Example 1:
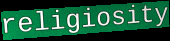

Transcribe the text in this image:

religiosity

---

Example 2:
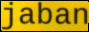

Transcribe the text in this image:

jaban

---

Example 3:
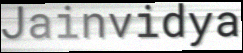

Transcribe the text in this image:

Jainvidya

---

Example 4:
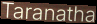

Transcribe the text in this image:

Taranatha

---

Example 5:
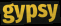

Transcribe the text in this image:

gypsy